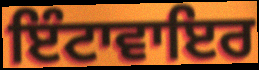
ਇੰਟਾਵਾਇਰ